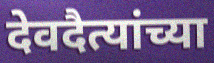
देवदैत्यांच्या